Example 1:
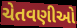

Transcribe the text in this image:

ચેતવણીઓ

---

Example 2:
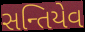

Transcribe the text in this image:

સન્તિયેવ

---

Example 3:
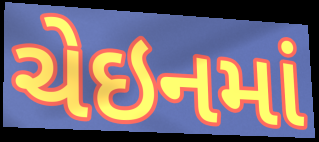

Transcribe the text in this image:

ચેઇનમાં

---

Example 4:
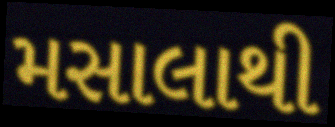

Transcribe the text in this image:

મસાલાથી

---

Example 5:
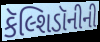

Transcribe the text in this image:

કૅલ્શિડૉનીની